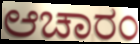
ಆಚಾರಂ